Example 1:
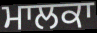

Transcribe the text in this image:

ਮਾਲਕਾ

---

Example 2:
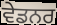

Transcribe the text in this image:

ਵੇਡਨਰ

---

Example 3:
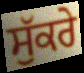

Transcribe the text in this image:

ਸੁੱਕਰੇ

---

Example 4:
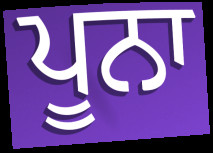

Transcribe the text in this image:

ਪੂਨਾ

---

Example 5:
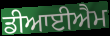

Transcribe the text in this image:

ਡੀਆਈਐਮ